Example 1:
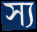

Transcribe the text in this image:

স্য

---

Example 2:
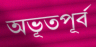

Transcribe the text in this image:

অভূতপূৰ্ব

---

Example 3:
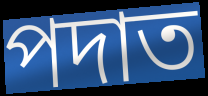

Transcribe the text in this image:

পদাত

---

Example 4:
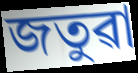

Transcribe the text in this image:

জতুৱা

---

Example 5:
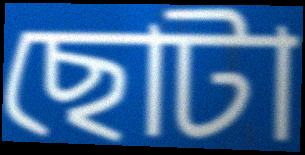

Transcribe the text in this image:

ছোটা